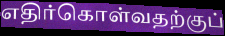
எதிர்கொள்வதற்குப்